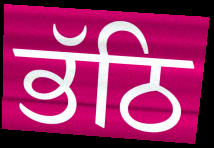
ਭੱਠਿ